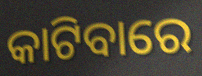
କାଟିବାରେ